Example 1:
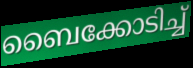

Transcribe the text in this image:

ബൈക്കോടിച്ച്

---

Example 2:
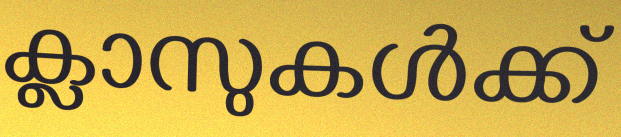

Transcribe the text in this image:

ക്ലാസുകൾക്ക്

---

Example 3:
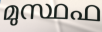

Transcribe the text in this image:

മുസ്ഥഫ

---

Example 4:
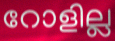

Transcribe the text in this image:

റോളില്ല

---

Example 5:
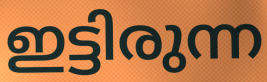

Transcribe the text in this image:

ഇട്ടിരുന്ന